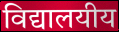
विद्यालयीय